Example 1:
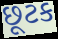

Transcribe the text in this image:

છૂટક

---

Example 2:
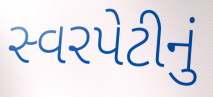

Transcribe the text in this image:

સ્વરપેટીનું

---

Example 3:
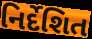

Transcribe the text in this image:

નિર્દેશિત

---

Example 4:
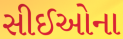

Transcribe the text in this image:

સીઈઓના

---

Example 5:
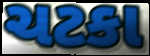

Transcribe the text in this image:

ચટકા